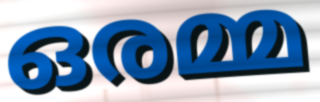
ഒരമ്മ